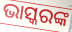
ଭାସ୍କରଙ୍କ